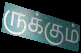
ருக்கும்